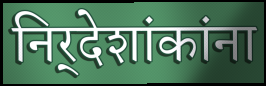
निर्देशांकांना